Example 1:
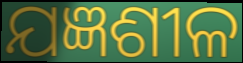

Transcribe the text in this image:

ଯଜ୍ଞଶୀଳ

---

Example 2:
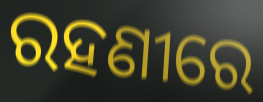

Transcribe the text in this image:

ରହଣୀରେ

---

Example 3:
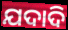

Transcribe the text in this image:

ଯଦାଦି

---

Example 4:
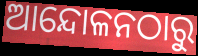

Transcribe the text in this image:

ଆନ୍ଦୋଳନଠାରୁ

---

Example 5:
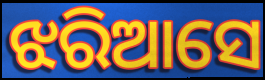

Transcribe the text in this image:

ଝରିଆସେ